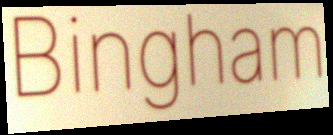
Bingham